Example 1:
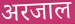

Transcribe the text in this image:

अरजाल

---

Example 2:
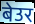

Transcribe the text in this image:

बेउर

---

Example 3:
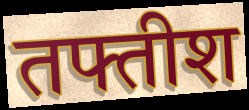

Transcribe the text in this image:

तफ्तीश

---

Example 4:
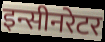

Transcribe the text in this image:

इन्सीनरेटर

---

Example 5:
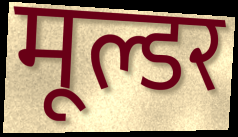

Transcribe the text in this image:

मूल्डर